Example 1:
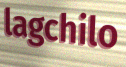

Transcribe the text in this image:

lagchilo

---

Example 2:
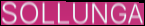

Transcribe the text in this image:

SOLLUNGA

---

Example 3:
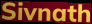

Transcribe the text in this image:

Sivnath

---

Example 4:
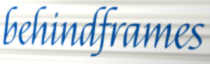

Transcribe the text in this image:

behindframes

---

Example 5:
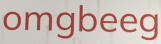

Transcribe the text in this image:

omgbeeg